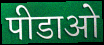
पीडाओ